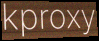
kproxy